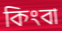
কিংবা